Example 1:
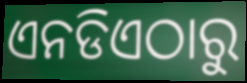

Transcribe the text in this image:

ଏନଡିଏଠାରୁ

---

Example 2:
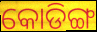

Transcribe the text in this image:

କୋଡିଙ୍ଗ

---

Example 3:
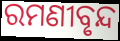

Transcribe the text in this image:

ରମଣୀବୃନ୍ଦ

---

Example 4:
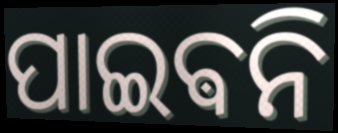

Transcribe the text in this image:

ପାଇଵନି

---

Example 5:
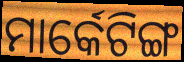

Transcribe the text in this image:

ମାର୍କେଟିଙ୍ଗ